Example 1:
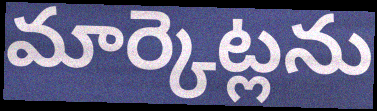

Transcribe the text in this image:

మార్కెట్లను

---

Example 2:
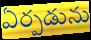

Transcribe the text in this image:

ఏర్పడును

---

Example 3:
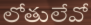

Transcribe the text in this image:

లోతులేవో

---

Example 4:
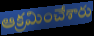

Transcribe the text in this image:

ఆక్రమించేశారు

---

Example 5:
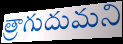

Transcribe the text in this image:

త్రాగుదుమని